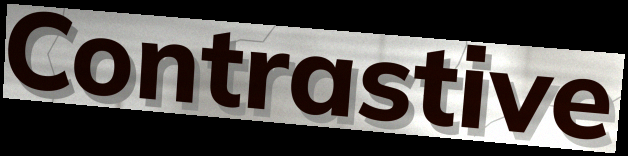
Contrastive